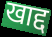
खाद्द